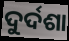
ଦୁର୍ଦଶା